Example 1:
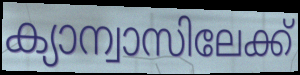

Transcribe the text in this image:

ക്യാന്വാസിലേക്ക്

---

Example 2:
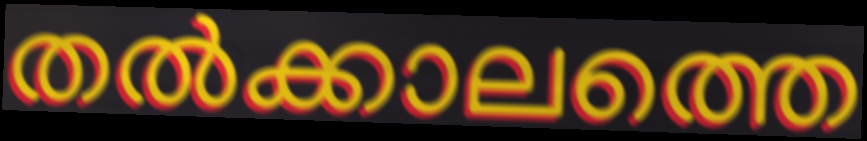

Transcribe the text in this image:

തൽക്കാലത്തെ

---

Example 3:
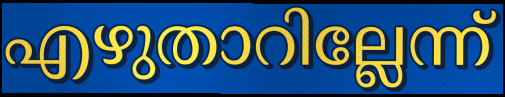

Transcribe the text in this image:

എഴുതാറില്ലേന്ന്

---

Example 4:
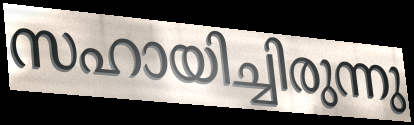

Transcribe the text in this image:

സഹായിച്ചിരുന്നു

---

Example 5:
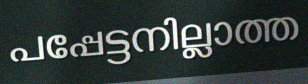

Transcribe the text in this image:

പപ്പേട്ടനില്ലാത്ത